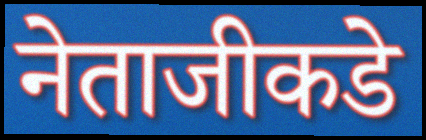
नेताजीकडे